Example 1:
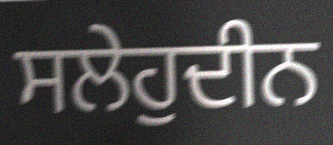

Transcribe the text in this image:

ਸਲੇਹੁਦੀਨ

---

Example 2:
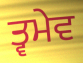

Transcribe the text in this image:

ਤ੍ਵਮੇਵ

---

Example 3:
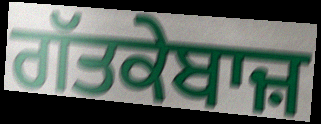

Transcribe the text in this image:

ਗੱਤਕੇਬਾਜ਼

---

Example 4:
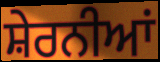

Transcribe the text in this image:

ਸ਼ੇਰਨੀਆਂ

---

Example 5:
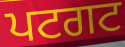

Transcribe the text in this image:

ਪਟਗਟ